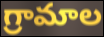
గ్రామాల